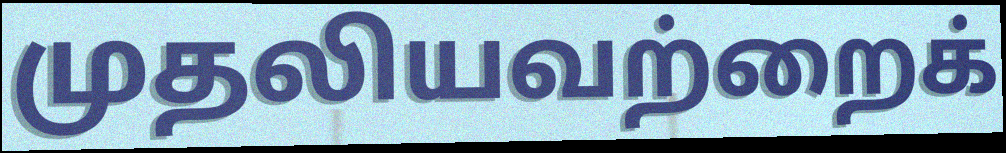
முதலியவற்றைக்